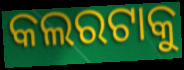
କଲରଟାକୁ